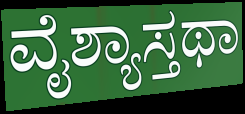
ವೈಶ್ಯಾಸ್ತಥಾ